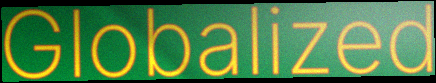
Globalized